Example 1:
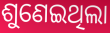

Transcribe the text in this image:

ଶୁଣେଇଥିଲା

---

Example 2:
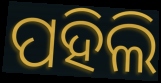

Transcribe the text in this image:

ପହିଲି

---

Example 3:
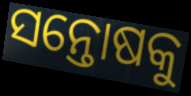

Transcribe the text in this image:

ସନ୍ତୋଷକୁ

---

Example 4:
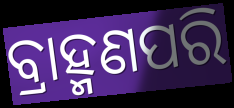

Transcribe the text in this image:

ବ୍ରାହ୍ମଣପରି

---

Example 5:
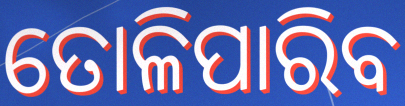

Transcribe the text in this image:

ତୋଳିପାରିବ